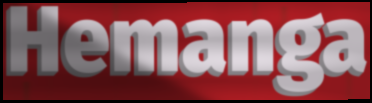
Hemanga